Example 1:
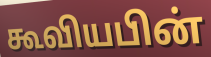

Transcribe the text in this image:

கூவியபின்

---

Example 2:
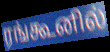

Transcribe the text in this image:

ரங்கூனில்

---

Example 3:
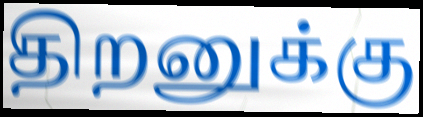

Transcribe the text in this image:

திறனுக்கு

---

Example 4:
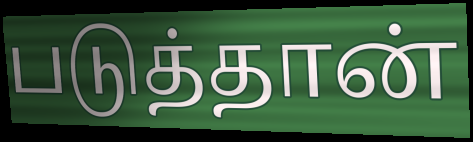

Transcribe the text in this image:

படுத்தான்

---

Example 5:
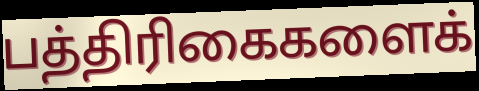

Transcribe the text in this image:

பத்திரிகைகளைக்